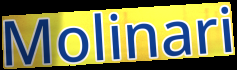
Molinari